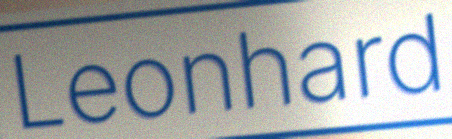
Leonhard